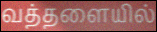
வத்தளையில்